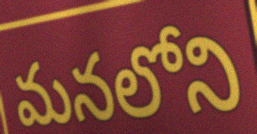
మనలోని